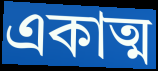
একাত্ম